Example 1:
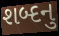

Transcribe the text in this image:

શબ્દનુ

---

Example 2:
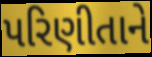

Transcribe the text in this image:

પરિણીતાને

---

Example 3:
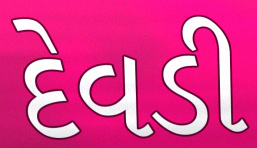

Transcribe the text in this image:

દેવડી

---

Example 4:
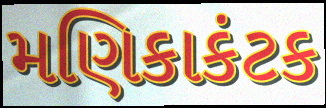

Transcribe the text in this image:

મણિકાકંટક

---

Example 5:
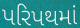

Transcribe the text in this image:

પરિપથમાં